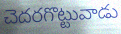
చెదరగొట్టువాడు